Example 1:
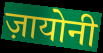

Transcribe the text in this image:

ज़ायोनी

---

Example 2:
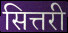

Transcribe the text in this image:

सित्तरी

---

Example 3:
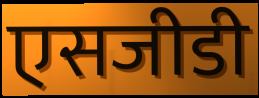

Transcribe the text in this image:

एसजीडी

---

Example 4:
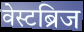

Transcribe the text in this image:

वेस्टब्रिज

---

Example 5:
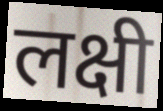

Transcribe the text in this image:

लक्षी